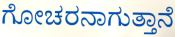
ಗೋಚರನಾಗುತ್ತಾನೆ